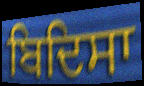
ਬਿਦਿਸਾ